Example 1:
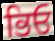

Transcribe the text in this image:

ਭਿਓ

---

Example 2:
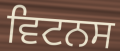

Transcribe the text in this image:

ਵਿਟਨਸ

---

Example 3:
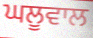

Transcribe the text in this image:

ਘਲੂਵਾਲ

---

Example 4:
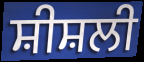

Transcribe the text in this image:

ਸ਼ੀਸ਼ਲੀ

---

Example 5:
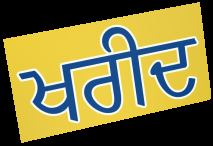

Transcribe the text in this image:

ਖਰੀਦ